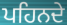
ਪਹਿਨਦੇ